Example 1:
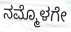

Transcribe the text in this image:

ನಮ್ಮೊಳಗೇ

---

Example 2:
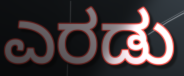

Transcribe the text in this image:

ಎರಡು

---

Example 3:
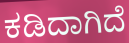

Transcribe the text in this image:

ಕಡಿದಾಗಿದೆ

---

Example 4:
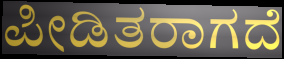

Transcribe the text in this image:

ಪೀಡಿತರಾಗದೆ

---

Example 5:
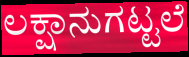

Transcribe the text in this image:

ಲಕ್ಷಾನುಗಟ್ಟಲೆ